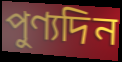
পুণ্যদিন